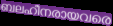
ബലഹീനരായവരെ